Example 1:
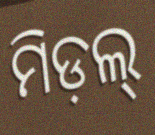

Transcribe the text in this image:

ମିଡ଼ଲ୍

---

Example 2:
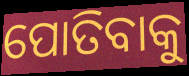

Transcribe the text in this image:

ପୋତିବାକୁ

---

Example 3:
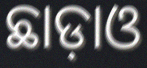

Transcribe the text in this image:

ଛାଡ଼ାଓ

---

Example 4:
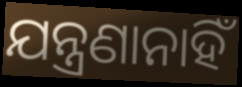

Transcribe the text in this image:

ଯନ୍ତ୍ରଣାନାହିଁ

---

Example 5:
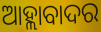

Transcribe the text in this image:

ଆହ୍ଲାବାଦର